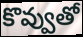
కొవ్వుతో